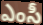
ఎంసీ